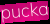
pucka